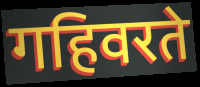
गहिवरते